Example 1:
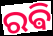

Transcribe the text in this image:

ରଵି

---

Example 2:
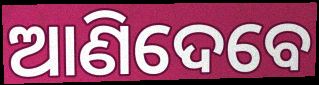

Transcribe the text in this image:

ଆଣିଦେବେ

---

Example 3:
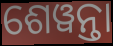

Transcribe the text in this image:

ଶେୱନ୍ତା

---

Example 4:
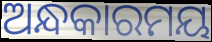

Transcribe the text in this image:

ଅନ୍ଧକାରମୟ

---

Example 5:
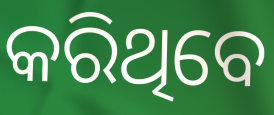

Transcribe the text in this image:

କରିଥିବେ